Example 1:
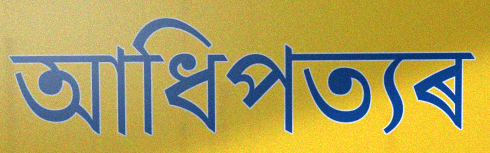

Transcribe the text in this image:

আধিপত্যৰ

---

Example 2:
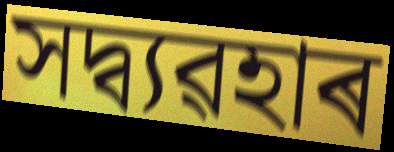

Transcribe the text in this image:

সদ্ব্যৱহাৰ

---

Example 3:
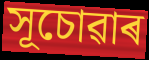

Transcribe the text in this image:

সূচোৱাৰ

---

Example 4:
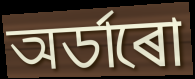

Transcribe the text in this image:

অৰ্ডাৰো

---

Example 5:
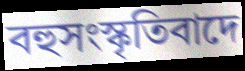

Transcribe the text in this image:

বহুসংস্কৃতিবাদে